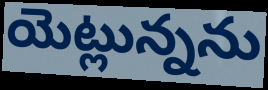
యెట్లున్నను